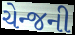
ચેન્જની